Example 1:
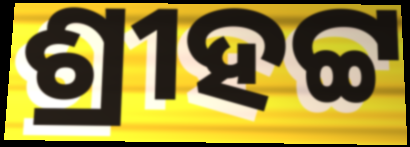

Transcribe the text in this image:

ଶ୍ରୀହଟ୍ଟ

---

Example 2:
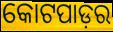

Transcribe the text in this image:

କୋଟପାଡ଼ର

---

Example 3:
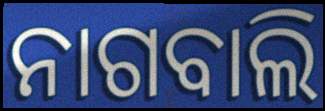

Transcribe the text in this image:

ନାଗବାଲି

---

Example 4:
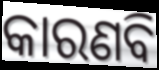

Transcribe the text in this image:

କାରଣବି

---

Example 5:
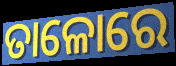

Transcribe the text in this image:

ତାଳୋରେ